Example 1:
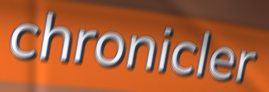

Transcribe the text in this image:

chronicler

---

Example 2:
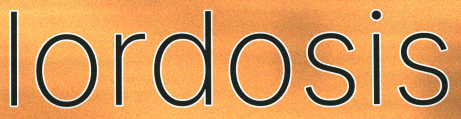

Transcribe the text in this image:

lordosis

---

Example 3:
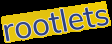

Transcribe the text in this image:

rootlets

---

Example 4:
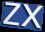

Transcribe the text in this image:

zx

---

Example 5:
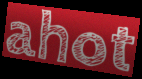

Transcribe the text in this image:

ahot